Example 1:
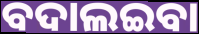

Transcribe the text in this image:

ବଦାଲଇବା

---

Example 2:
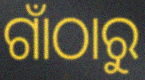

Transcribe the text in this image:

ଗାଁଠାରୁ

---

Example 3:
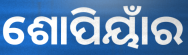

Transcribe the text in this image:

ଶୋପିୟାଁର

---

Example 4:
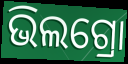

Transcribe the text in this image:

ଭିଲଗ୍ରୋ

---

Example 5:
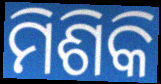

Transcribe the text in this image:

ମିଶିକି